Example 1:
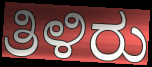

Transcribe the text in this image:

ತಿಳಿರು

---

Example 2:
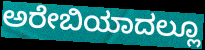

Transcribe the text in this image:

ಅರೇಬಿಯಾದಲ್ಲೂ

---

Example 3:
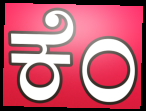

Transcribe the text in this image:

ಕೆಂ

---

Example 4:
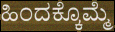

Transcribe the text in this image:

ಹಿಂದಕ್ಕೊಮ್ಮೆ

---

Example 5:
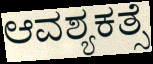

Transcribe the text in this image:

ಆವಶ್ಯಕತ್ಸೆ